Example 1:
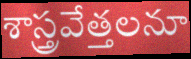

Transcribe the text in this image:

శాస్త్రవేత్తలనూ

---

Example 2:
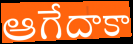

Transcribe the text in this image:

ఆగేదాకా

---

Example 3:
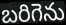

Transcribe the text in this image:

బరిగెను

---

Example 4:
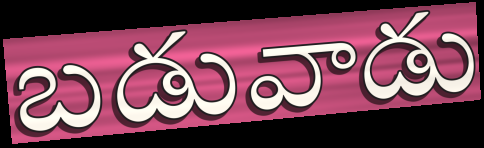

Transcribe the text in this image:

బడువాడు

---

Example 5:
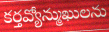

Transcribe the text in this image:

కర్తవ్యోన్ముఖులను